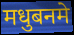
मधुबनमे